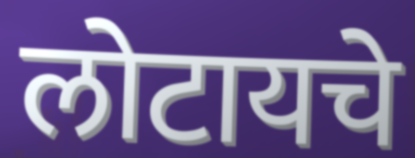
लोटायचे